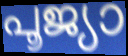
പൂജ്യാ